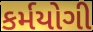
કર્મયોગી